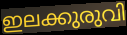
ഇലക്കുരുവി